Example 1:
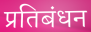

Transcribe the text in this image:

प्रतिबंधन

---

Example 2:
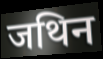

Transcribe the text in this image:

जथिन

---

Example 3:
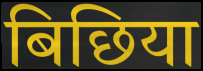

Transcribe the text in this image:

बिछिया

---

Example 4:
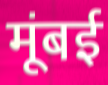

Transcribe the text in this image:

मूंबई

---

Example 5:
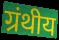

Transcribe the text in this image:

ग्रंथीय